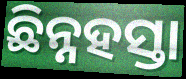
ଛିନ୍ନହସ୍ତା